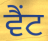
ਵੈਂਟ